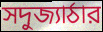
সদুজ্যাঠার